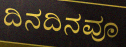
ದಿನದಿನವೂ